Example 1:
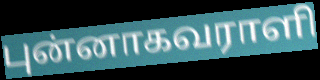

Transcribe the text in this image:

புன்னாகவராளி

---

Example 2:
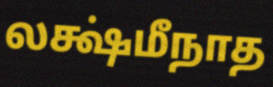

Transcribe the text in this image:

லக்ஷ்மீநாத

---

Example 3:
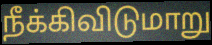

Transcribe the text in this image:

நீக்கிவிடுமாறு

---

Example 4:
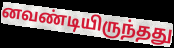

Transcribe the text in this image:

னவண்டியிருந்தது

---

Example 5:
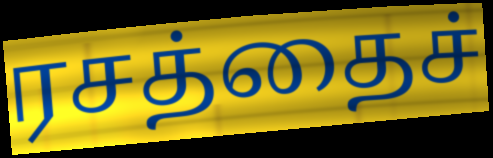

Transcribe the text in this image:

ரசத்தைச்